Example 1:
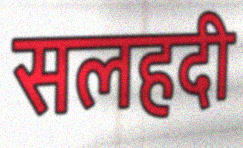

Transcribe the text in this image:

सलहदी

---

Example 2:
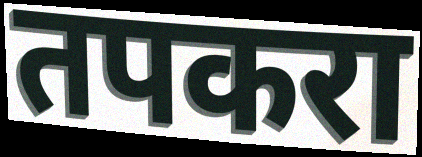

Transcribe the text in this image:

तपकरा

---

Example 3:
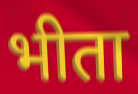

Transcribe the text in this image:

भीता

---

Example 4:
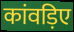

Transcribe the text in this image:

कांवड़िए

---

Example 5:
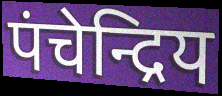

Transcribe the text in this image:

पंचेन्द्रिय